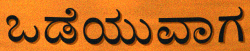
ಒಡೆಯುವಾಗ